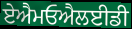
ਏਐਮਓਐਲਈਡੀ